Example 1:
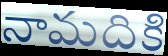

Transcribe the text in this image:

నామదికి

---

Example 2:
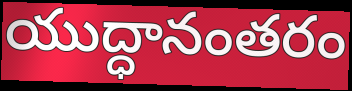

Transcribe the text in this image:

యుద్ధానంతరం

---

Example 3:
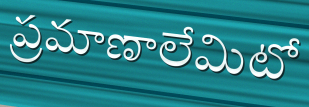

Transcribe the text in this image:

ప్రమాణాలేమిటో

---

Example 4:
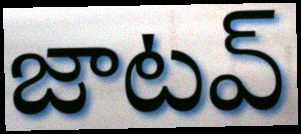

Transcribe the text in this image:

జాటవ్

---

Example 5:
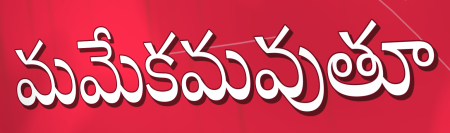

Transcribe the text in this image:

మమేకమవుతూ